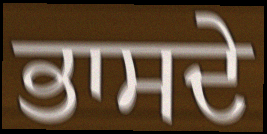
ਭਾਸਦੇ